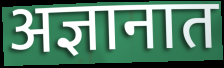
अज्ञानात